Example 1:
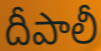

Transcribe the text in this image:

దీపాలీ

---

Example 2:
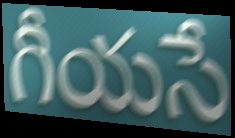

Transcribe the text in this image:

గీయసే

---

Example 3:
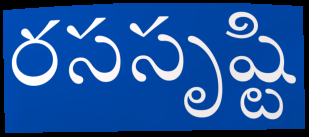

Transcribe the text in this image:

రససృష్టి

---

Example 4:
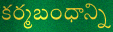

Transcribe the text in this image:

కర్మబంధాన్ని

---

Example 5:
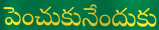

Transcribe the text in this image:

పెంచుకునేందుకు